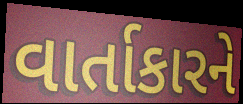
વાર્તાકારને